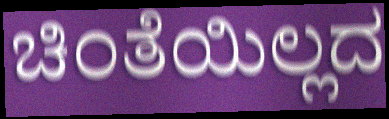
ಚಿಂತೆಯಿಲ್ಲದ